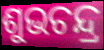
ଶୁଭଚନ୍ଦ୍ର